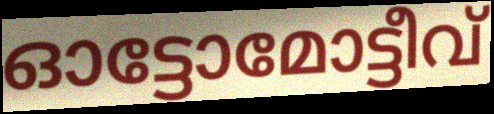
ഓട്ടോമോട്ടീവ്